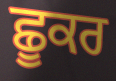
ਛੂਕਰ